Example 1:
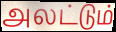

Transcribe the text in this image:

அலட்டும்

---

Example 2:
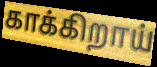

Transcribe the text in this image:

காக்கிறாய்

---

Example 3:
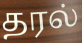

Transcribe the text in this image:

தரல்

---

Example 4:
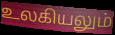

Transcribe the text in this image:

உலகியலும்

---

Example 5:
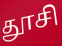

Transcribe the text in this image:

தூசி